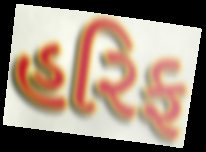
હરિફ